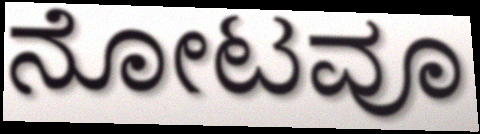
ನೋಟವೂ